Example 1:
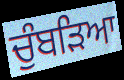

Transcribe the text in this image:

ਚੁੰਬੜਿਆ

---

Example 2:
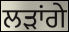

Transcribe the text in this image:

ਲੜਾਂਗੇ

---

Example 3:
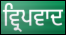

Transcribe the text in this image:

ਵ੍ਰਿਪਵਾਦ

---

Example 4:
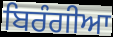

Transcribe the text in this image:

ਬਿਰੰਗੀਆ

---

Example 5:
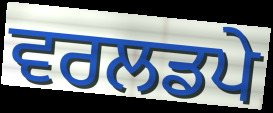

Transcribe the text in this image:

ਵਰਲਡਪੇ